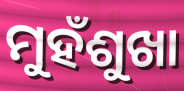
ମୁହଁଶୁଖା